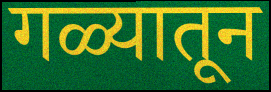
गळ्यातून